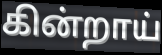
கின்றாய்